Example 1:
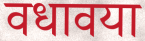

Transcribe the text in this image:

वधावया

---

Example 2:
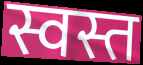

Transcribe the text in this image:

स्वस्त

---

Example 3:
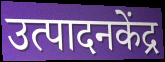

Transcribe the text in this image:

उत्पादनकेंद्र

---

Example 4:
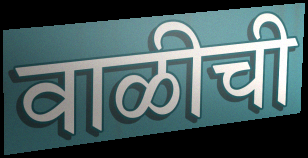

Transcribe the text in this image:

वाळीची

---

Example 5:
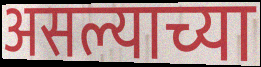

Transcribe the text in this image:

असल्याच्या